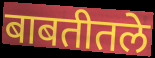
बाबतीतले